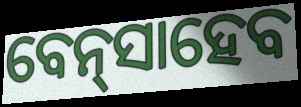
ବେନ୍‌ସାହେବ